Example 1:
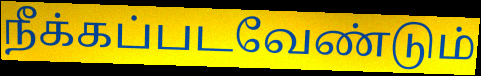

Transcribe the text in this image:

நீக்கப்படவேண்டும்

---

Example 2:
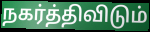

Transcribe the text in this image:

நகர்த்திவிடும்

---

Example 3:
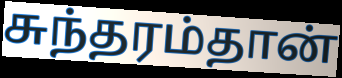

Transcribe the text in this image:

சுந்தரம்தான்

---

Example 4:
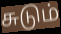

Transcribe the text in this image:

சுடும்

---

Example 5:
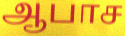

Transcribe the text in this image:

ஆபாச